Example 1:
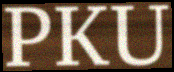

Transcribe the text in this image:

PKU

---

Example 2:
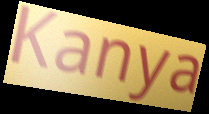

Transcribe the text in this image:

Kanya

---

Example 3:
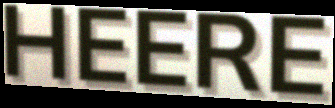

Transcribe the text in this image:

HEERE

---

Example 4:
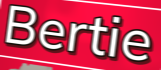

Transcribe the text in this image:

Bertie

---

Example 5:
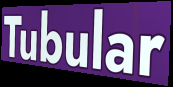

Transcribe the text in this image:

Tubular